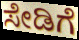
ಸೇಡಿಗೆ